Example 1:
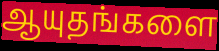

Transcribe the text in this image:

ஆயுதங்களை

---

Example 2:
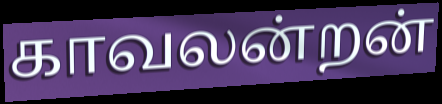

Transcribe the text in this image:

காவலன்றன்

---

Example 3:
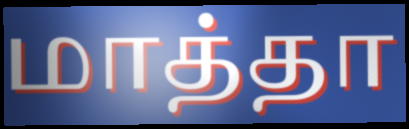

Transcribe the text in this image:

மாத்தா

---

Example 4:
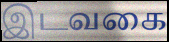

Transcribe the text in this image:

இடவகை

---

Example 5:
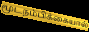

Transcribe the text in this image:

மூடநம்பிக்கையால்